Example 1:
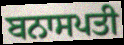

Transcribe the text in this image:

ਬਨਾਸਪਤੀ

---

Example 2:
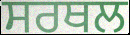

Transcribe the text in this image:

ਸਰਥਲ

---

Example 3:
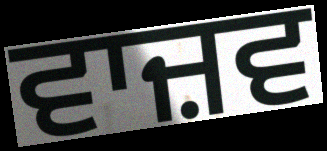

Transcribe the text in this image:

ਵਾਜ਼ਵ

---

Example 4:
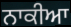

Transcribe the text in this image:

ਨਾਕੀਆ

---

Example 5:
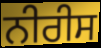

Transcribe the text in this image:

ਨੀਰੀਸ